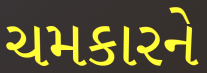
ચમકારને